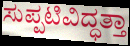
ಸುಪ್ಪಟಿವಿದ್ಧತ್ತಾ